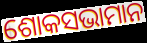
ଶୋକସଭାମାନ